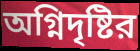
অগ্নিদৃষ্টির